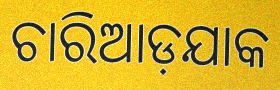
ଚାରିଆଡ଼ଯାକ